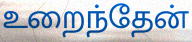
உறைந்தேன்